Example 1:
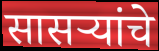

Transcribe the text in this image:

सासर्‍यांचे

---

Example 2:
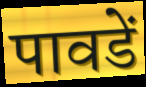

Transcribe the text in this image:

पावडें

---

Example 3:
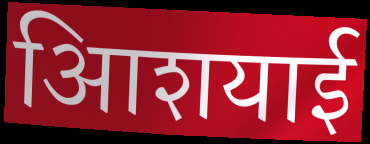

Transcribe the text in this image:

आिशयाई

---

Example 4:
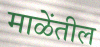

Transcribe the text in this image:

माळेंतील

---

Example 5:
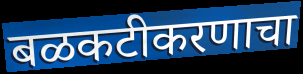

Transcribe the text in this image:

बळकटीकरणाचा